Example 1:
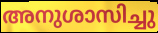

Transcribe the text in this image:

അനുശാസിച്ചു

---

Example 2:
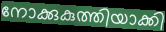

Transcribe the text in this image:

നോക്കുകുത്തിയാക്കി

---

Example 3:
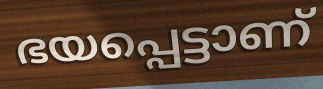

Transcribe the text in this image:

ഭയപ്പെട്ടാണ്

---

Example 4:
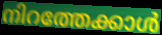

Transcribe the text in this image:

നിറത്തേക്കാൾ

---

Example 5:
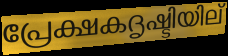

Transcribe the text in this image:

പ്രേക്ഷകദൃഷ്ടിയില്